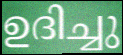
ഉദിച്ചു